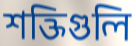
শক্তিগুলি